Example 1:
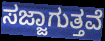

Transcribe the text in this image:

ಸಜ್ಜಾಗುತ್ತವೆ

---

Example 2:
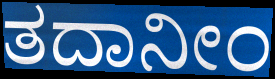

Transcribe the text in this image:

ತದಾನೀಂ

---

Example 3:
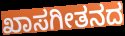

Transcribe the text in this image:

ಖಾಸಗೀತನದ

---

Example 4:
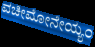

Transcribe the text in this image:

ವಚೀಮೋನೇಯ್ಯಂ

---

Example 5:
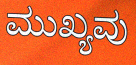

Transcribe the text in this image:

ಮುಖ್ಯವು